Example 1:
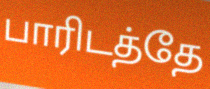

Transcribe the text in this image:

பாரிடத்தே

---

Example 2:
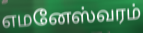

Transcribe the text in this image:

எமனேஸ்வரம்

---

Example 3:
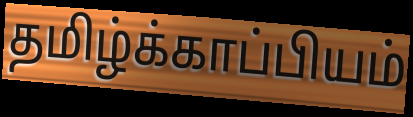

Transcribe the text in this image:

தமிழ்க்காப்பியம்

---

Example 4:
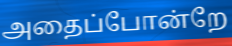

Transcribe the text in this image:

அதைப்போன்றே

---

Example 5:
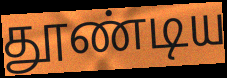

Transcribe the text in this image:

தூண்டிய